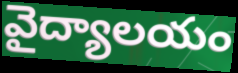
వైద్యాలయం